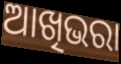
ଆଖିଭରା